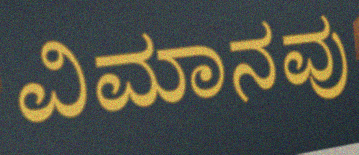
ವಿಮಾನವು